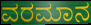
ವರಮಾನ